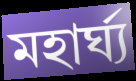
মহার্ঘ্য